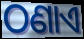
ଠଣାଏ